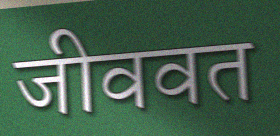
जीववत